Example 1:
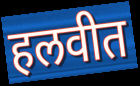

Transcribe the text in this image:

हलवीत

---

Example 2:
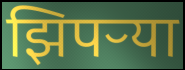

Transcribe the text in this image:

झिपऱ्या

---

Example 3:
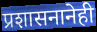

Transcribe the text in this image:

प्रशासनानेही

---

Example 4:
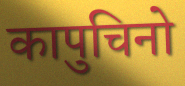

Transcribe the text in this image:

कापुचिनो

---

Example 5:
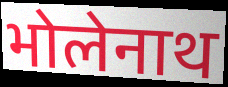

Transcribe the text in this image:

भोलेनाथ